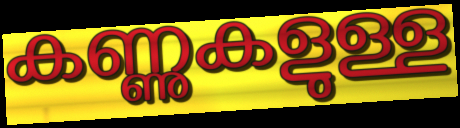
കണ്ണുകളുള്ള